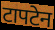
टापटेन